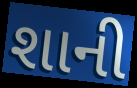
શાની